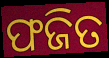
ଫଜିତ